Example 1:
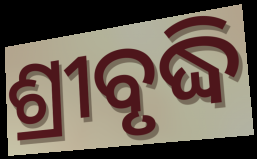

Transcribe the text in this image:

ଶ୍ରୀବୃଦ୍ଧି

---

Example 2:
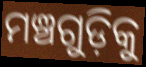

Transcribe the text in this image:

ମଞ୍ଚଗୁଡ଼ିକୁ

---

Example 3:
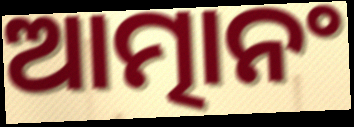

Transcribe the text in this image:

ଆତ୍ମାନଂ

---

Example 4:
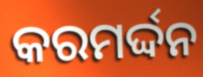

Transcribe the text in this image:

କରମର୍ଦ୍ଦନ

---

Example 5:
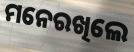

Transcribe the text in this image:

ମନେରଖିଲେ